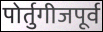
पोर्तुगीजपूर्व